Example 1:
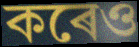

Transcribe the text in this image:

কৰেও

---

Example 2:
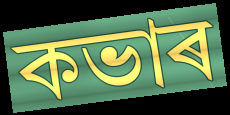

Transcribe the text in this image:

কভাৰ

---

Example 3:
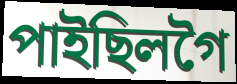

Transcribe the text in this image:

পাইছিলগৈ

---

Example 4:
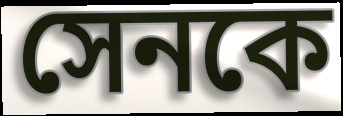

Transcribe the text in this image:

সেনকে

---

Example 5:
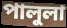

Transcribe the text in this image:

পালুলা